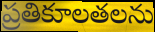
ప్రతికూలతలను